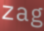
zag